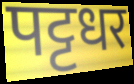
पट्टधर